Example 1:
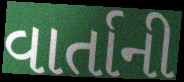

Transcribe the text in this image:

વાર્તાની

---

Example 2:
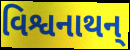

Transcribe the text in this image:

વિશ્વનાથન્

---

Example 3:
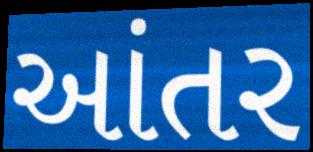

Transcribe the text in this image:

આંતર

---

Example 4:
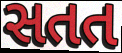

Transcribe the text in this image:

સતત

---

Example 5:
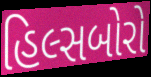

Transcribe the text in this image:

હિલ્સબોરો